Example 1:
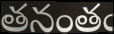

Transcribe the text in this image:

తనంతఁ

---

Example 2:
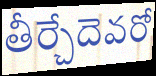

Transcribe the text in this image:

తీర్చేదెవరో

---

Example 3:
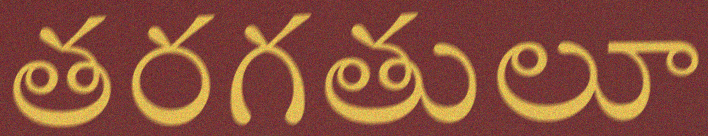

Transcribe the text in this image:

తరగతులూ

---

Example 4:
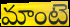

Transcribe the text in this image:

మాంటె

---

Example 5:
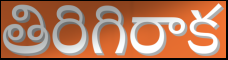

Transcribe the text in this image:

తిరిగిరాక